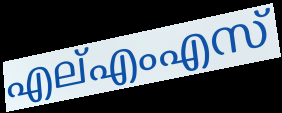
എല്എംഎസ്